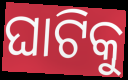
ଘାଟିକୁ